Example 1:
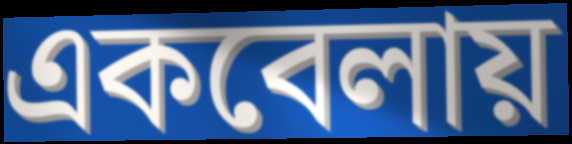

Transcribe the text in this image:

একবেলায়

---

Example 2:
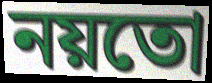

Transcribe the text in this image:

নয়তো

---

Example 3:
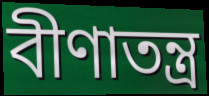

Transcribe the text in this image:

বীণাতন্ত্র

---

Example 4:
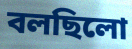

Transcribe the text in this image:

বলছিলো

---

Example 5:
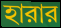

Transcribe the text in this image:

হারার